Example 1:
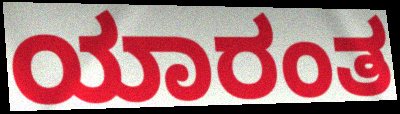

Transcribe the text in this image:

ಯಾರಂತ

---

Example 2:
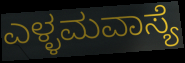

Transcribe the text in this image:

ಎಳ್ಳಮವಾಸ್ಯೆ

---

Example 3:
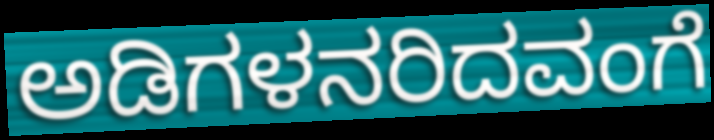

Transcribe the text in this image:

ಅಡಿಗಳನರಿದವಂಗೆ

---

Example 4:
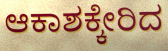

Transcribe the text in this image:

ಆಕಾಶಕ್ಕೇರಿದ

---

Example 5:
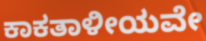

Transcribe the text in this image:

ಕಾಕತಾಳೀಯವೇ